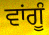
ਵਾਂਗੂੰ